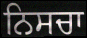
ਨਿਸਚਾ